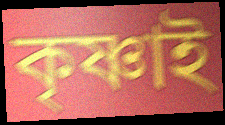
কৃষ্ণাই